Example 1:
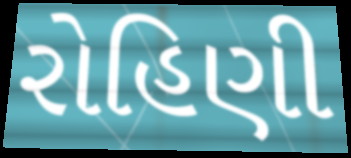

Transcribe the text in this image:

રોહિણી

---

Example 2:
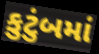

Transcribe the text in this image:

કુટુંબમાં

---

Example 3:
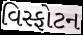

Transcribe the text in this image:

વિસ્ફોટન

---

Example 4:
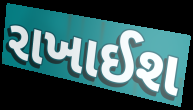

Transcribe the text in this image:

રાખાઈશ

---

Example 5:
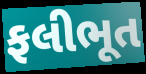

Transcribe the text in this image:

ફલીભૂત